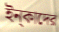
ইন্‌কাদের